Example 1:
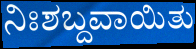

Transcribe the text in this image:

ನಿಃಶಬ್ದವಾಯಿತು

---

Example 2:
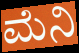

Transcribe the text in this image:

ಮೆನಿ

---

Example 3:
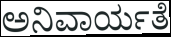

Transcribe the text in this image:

ಅನಿವಾರ್ಯತೆ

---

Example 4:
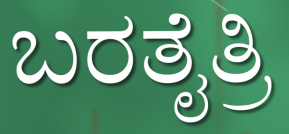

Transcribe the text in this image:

ಬರತೈತ್ರಿ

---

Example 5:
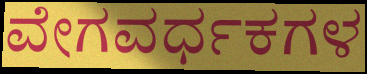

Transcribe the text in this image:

ವೇಗವರ್ಧಕಗಳ